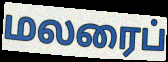
மலரைப்